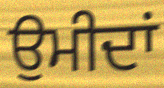
ਉਮੀਦਾਂ